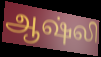
ஆஷ்லி